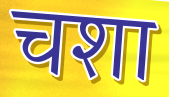
चशा